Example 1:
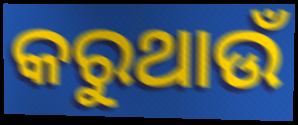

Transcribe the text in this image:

କରୁଥାଉଁ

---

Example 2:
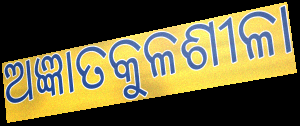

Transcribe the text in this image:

ଅଜ୍ଞାତକୁଳଶୀଳା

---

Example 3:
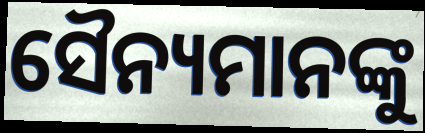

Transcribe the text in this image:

ସୈନ୍ୟମାନଙ୍କୁ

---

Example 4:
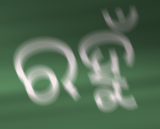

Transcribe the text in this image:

ରହୁଁ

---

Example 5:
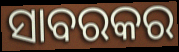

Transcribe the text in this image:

ସାବରକର